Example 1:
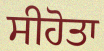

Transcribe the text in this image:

ਸੀਹੋਤਾ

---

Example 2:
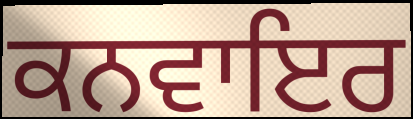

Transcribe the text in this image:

ਕਨਵਾਇਰ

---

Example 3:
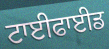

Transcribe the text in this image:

ਟਾਈਫਾਈਡ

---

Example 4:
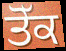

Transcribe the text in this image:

ਤੋੱਕ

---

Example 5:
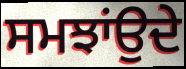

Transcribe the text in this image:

ਸਮਝਾਂਉਦੇ